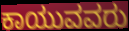
ಕಾಯುವವರು